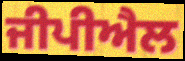
ਜੀਪੀਐਲ